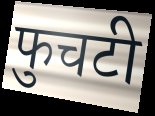
फुचटी